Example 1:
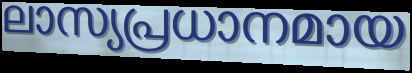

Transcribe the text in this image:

ലാസ്യപ്രധാനമായ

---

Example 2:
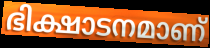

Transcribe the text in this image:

ഭിക്ഷാടനമാണ്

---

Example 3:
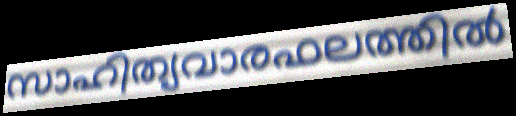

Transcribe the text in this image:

സാഹിത്യവാരഫലത്തിൽ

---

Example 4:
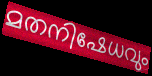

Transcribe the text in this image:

മതനിഷേധവും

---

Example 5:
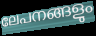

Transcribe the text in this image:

ലേപനങ്ങളും